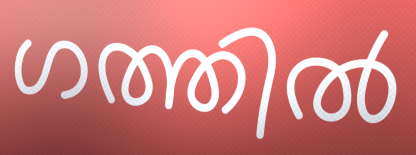
ഗത്തിൽ